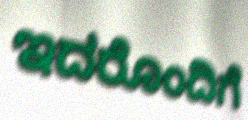
ಇದರೊಂದಿಗೆ